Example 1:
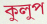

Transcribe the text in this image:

কুলুপ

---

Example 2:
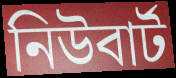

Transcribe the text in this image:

নিউবার্ট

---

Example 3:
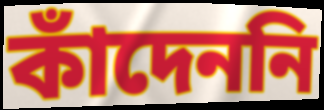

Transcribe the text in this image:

কাঁদেননি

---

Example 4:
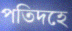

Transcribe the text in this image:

পতিদহে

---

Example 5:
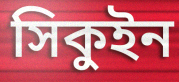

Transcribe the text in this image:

সিকুইন